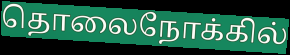
தொலைநோக்கில்